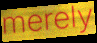
merely